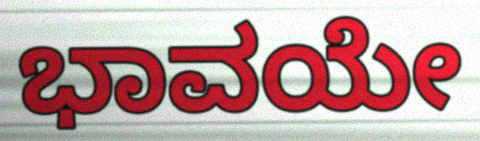
ಭಾವಯೇ